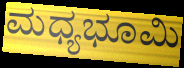
ಮಧ್ಯಭೂಮಿ